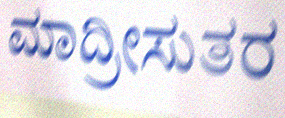
ಮಾದ್ರೀಸುತರ